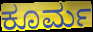
ಕೂರ್ಮ